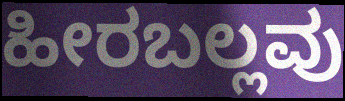
ಹೀರಬಲ್ಲವು